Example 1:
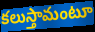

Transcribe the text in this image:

కలుస్తామంటూ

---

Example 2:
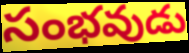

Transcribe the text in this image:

సంభవుడు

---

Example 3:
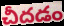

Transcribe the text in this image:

చీదడం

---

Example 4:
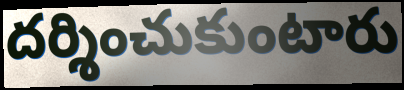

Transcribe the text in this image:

దర్శించుకుంటారు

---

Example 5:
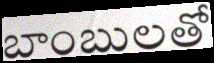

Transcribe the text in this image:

బాంబులతో